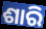
ଶାରି